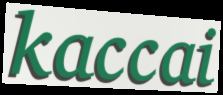
kaccai